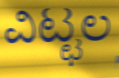
ವಿಟ್ಟಲ